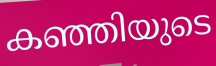
കഞ്ഞിയുടെ